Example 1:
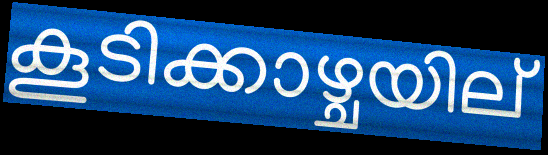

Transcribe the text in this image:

കൂടിക്കാഴ്ചയില്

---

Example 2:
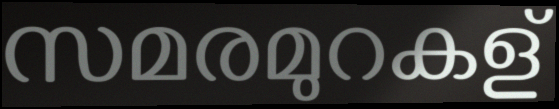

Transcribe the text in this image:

സമരമുറകള്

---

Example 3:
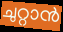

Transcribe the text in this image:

ചുറ്റാൻ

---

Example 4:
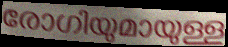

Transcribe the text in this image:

രോഗിയുമായുള്ള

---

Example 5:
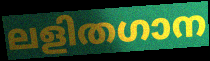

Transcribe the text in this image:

ലളിതഗാന